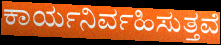
ಕಾರ್ಯನಿರ್ವಹಿಸುತ್ತವೆ